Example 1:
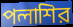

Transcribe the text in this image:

পলাশির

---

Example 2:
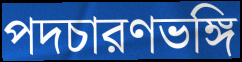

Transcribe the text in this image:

পদচারণভঙ্গি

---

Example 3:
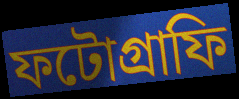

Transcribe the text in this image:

ফটোগ্রাফি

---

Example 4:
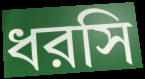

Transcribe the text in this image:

ধরসি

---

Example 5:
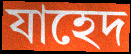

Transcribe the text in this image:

যাহেদ